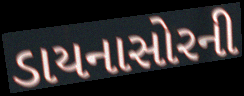
ડાયનાસોરની